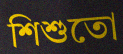
শিশুতো